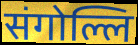
संगोल्लि